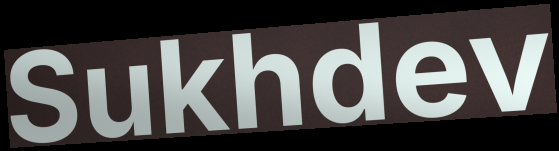
Sukhdev